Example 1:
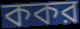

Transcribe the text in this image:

ককর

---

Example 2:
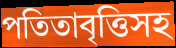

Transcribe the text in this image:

পতিতাবৃত্তিসহ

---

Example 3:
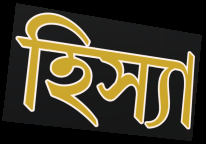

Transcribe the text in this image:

হিস্যা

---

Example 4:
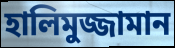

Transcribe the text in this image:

হালিমুজ্জামান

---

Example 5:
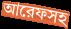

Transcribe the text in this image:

আরেফসহ